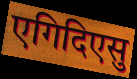
एगिदिएसु